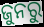
ଜୁନରୁ